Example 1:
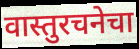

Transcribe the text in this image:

वास्तुरचनेचा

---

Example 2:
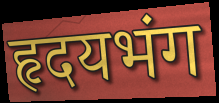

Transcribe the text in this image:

हृदयभंग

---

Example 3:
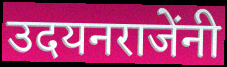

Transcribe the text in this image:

उदयनराजेंनी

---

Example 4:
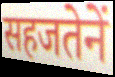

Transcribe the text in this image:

सहजतेनें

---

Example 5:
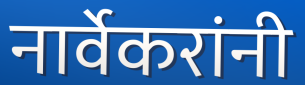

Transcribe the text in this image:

नार्वेकरांनी